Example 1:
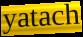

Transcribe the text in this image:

yatach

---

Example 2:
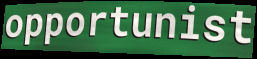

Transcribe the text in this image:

opportunist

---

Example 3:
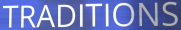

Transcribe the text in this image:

TRADITIONS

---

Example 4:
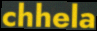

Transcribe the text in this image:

chhela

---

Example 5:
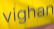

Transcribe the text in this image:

vighan